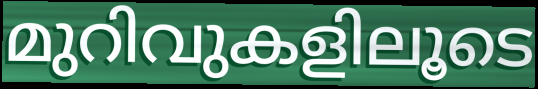
മുറിവുകളിലൂടെ